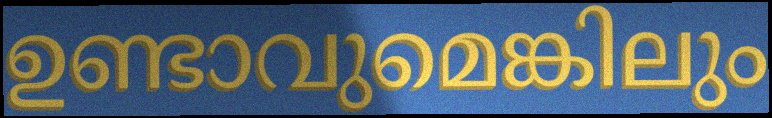
ഉണ്ടാവുമെങ്കിലും